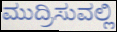
ಮುದ್ರಿಸುವಲ್ಲಿ